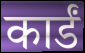
कार्डं